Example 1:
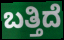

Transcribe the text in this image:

ಬತ್ತಿದೆ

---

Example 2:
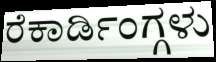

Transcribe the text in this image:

ರೆಕಾರ್ಡಿಂಗ್ಗಳು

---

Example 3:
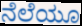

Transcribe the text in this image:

ನೆಲೆಯೂ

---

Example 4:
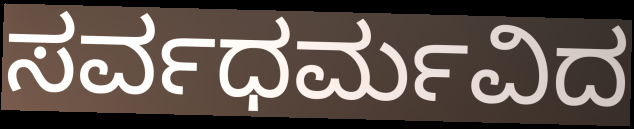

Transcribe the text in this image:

ಸರ್ವಧರ್ಮವಿದ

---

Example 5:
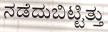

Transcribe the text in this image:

ನಡೆದುಬಿಟ್ಟಿತ್ತು